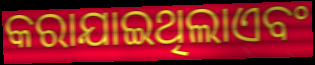
କରାଯାଇଥିଲାଏବଂ